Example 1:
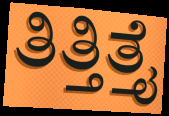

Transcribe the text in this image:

ತಿತ್ತಿತ್ತೈ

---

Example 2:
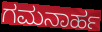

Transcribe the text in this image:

ಗಮನಾರ್ಹ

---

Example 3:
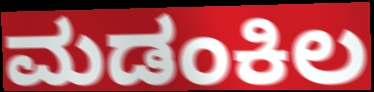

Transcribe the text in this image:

ಮಡಂಕಿಲ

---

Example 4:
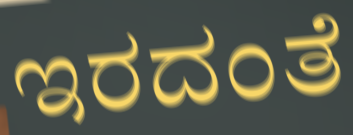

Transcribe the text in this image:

ಇರದಂತೆ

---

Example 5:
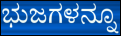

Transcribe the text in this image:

ಭುಜಗಳನ್ನೂ